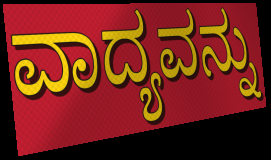
ವಾದ್ಯವನ್ನು